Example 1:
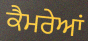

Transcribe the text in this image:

ਕੈਮਰੇਆਂ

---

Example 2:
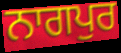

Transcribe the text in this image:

ਨਾਗਪੁਰ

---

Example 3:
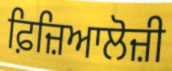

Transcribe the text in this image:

ਫ਼ਿਜ਼ਿਆਲੋਜ਼ੀ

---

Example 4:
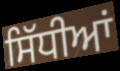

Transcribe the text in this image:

ਸਿੱਧੀਆਂ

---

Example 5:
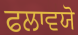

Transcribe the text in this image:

ਫਲਾਵਯੋ